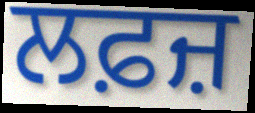
ਲਫ਼ਜ਼